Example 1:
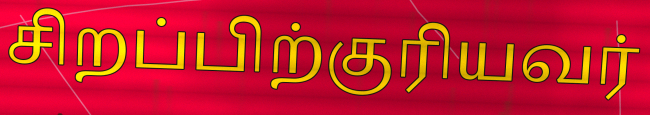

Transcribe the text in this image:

சிறப்பிற்குரியவர்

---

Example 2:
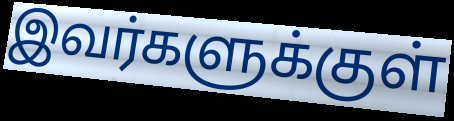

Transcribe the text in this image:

இவர்களுக்குள்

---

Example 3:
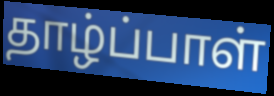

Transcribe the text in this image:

தாழ்ப்பாள்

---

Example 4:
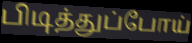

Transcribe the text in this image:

பிடித்துப்போய்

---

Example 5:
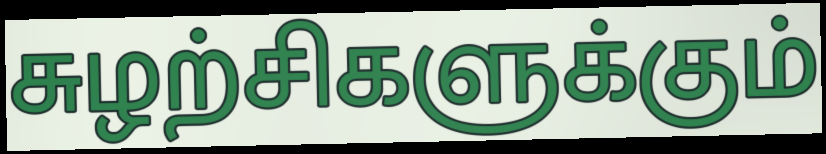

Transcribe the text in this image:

சுழற்சிகளுக்கும்